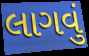
લાગવું